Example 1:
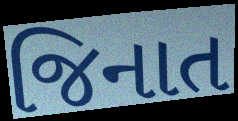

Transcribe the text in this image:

જિનાત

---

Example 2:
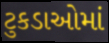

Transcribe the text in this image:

ટુકડાઓમાં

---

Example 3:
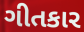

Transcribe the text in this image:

ગીતકાર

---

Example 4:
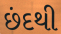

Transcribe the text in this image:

છંદથી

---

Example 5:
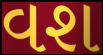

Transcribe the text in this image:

વશ